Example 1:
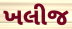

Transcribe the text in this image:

ખલીજ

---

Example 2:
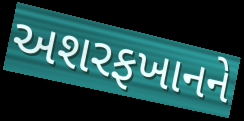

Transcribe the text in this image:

અશરફખાનને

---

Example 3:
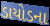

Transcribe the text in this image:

ડાયોડના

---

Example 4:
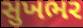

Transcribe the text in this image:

સુખભર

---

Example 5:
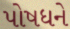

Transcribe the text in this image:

પોષધને